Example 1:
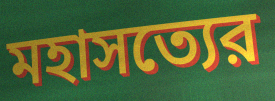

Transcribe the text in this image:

মহাসত্যের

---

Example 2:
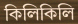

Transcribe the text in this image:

কিলিকিলি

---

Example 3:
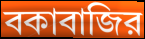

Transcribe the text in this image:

বকাবাজির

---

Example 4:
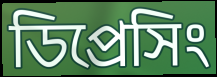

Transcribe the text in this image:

ডিপ্রেসিং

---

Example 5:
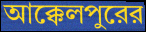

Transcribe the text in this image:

আক্কেলপুরের